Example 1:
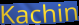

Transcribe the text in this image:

Kachin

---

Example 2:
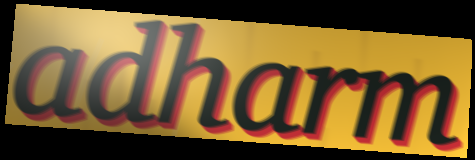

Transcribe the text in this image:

adharm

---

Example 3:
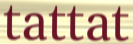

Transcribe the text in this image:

tattat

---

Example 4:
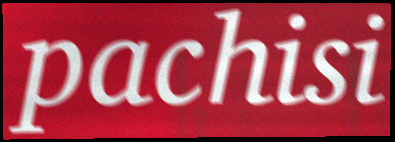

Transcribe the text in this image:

pachisi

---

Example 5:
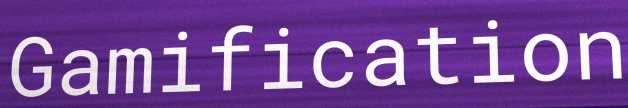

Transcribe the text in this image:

Gamification